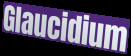
Glaucidium